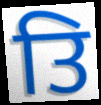
उि